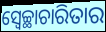
ସ୍ୱେଚ୍ଛାଚାରିତାର